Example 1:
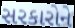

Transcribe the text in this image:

સરકારોને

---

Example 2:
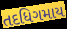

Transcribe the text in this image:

તદધિગમાય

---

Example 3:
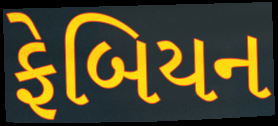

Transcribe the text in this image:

ફેબિયન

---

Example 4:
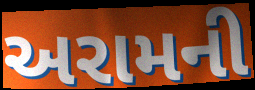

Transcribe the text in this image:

અરામની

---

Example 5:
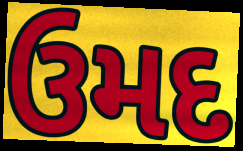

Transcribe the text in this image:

ઉમદ